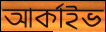
আৰ্কাইভ